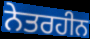
ਨੇਤਰਹੀਨ